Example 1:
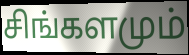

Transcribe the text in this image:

சிங்களமும்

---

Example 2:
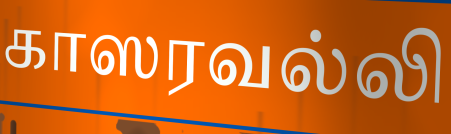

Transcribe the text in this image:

காஸரவல்லி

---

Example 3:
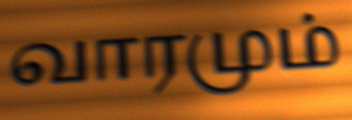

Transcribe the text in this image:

வாரமும்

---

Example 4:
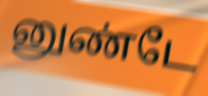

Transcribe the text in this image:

னுண்டே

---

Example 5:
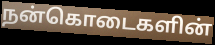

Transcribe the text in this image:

நன்கொடைகளின்